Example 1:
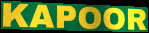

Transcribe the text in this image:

KAPOOR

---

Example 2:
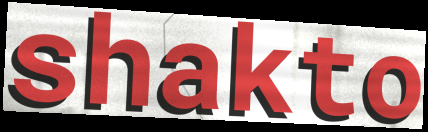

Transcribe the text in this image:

shakto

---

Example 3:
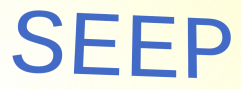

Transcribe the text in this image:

SEEP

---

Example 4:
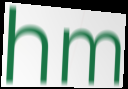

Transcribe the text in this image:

hm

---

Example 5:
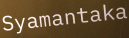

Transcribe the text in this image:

Syamantaka